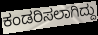
ಕಂಡರಿಸಲಾಗಿದ್ದು